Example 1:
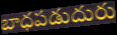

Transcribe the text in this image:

బాధపడుదురు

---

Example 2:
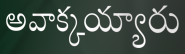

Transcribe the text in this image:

అవాక్కయ్యారు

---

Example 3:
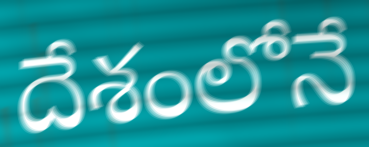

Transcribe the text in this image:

దేశంలోనే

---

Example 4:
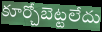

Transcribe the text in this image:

కూర్చోబెట్టలేదు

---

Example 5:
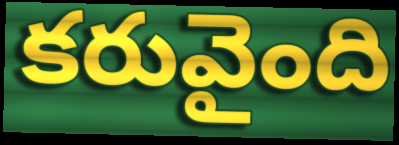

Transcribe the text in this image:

కరువైంది